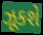
ઝૂકશે